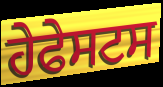
ਹੇਫੇਸਟਸ